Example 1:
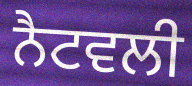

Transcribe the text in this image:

ਨੈਟਵਲੀ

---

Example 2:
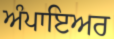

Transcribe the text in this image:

ਅੰਪਾਇਅਰ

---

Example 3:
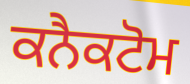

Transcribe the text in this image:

ਕਨੈਕਟੋਮ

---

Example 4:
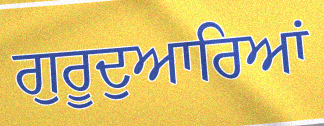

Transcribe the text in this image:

ਗੁਰੂਦੁਆਰਿਆਂ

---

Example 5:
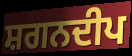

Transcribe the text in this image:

ਸ਼ਗਨਦੀਪ